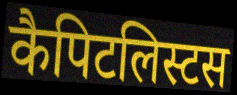
कैपिटलिस्टस